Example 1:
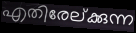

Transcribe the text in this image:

എതിരേല്ക്കുന്ന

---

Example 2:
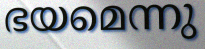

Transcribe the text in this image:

ഭയമെന്നു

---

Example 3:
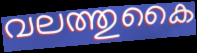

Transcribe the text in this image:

വലത്തുകൈ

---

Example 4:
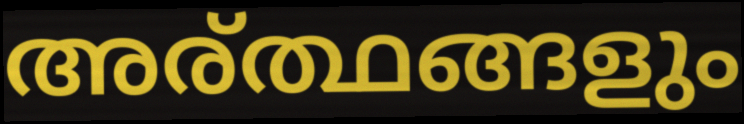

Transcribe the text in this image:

അര്ത്ഥങ്ങളും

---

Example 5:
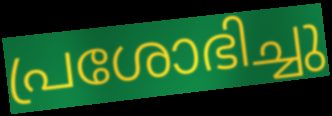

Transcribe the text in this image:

പ്രശോഭിച്ചു